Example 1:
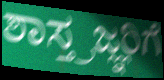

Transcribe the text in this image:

ಶಾಸ್ತ್ರಜ್ಞರಿಗೆ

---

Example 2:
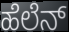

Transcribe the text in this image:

ಹೆಲೆನ್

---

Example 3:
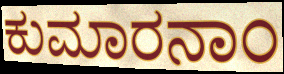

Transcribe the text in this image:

ಕುಮಾರನಾಂ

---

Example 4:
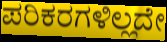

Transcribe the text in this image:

ಪರಿಕರಗಳಿಲ್ಲದೇ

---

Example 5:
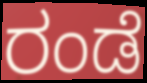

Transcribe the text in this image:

ರಂಡೆ